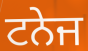
ਟਨੇਜ